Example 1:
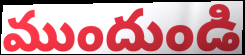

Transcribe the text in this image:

ముందుండి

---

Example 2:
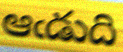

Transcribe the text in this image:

ఆఁడుది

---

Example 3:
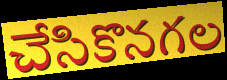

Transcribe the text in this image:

చేసికొనగల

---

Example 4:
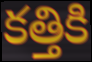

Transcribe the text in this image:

కత్తికి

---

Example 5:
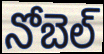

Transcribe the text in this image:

నోబెల్